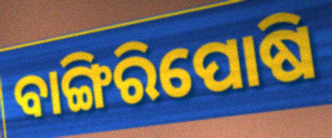
ବାଙ୍ଗିରିପୋଷି